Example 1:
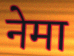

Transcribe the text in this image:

नेमा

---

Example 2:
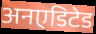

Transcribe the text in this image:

अनएडिटेड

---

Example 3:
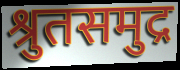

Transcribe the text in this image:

श्रुतसमुद्र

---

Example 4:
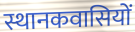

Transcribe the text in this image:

स्थानकवासियों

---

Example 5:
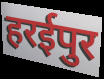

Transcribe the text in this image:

हरईपुर